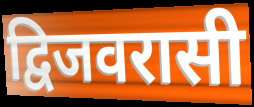
द्विजवरासी